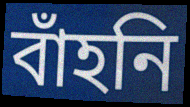
বাঁহনি